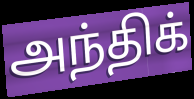
அந்திக்